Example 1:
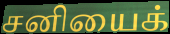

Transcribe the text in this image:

சனியைக்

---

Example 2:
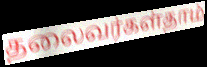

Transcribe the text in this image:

தலைவர்கள்தாம்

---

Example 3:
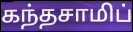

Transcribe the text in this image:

கந்தசாமிப்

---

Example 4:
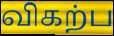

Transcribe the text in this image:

விகற்ப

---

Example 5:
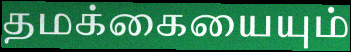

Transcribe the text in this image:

தமக்கையையும்